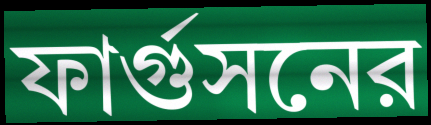
ফার্গুসনের